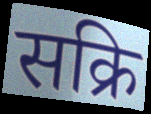
सक्रि